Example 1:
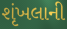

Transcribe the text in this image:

શૃંખલાની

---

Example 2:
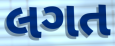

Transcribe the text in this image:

લગત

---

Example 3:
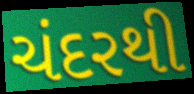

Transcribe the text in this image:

ચંદરથી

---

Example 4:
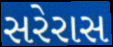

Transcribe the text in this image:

સરેરાસ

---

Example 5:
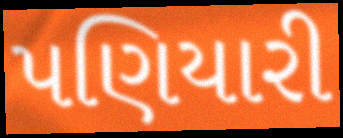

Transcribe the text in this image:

પણિયારી